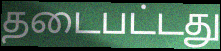
தடைபட்டது